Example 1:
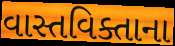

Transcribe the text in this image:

વાસ્તવિક્તાના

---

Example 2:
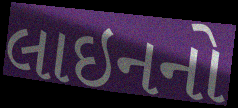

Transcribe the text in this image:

લાઇનનો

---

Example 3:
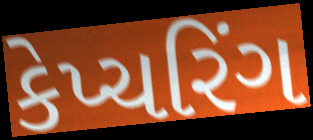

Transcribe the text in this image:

કેપ્ચરિંગ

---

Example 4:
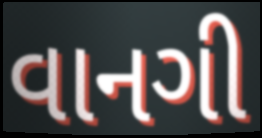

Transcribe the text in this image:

વાનગી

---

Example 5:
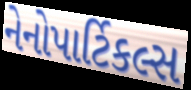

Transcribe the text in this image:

નેનોપાર્ટિકલ્સ